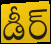
డీర్